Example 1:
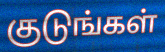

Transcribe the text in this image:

குடுங்கள்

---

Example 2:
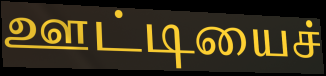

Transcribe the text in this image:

ஊட்டியைச்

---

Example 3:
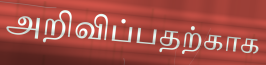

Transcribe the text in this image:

அறிவிப்பதற்காக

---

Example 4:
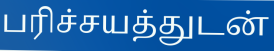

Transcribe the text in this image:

பரிச்சயத்துடன்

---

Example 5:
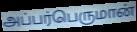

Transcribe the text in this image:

அப்பர்பெருமான்